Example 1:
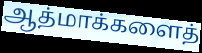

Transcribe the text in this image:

ஆத்மாக்களைத்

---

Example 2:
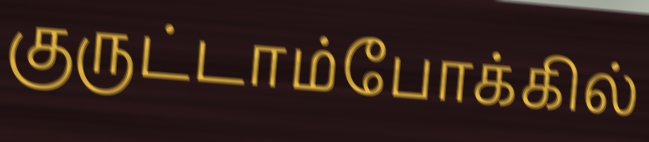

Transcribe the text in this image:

குருட்டாம்போக்கில்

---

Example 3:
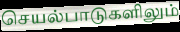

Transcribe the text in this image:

செயல்பாடுகளிலும்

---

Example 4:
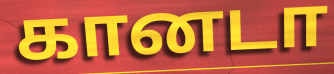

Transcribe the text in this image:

கானடா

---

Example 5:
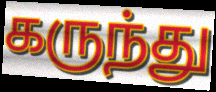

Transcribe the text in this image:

கருந்து